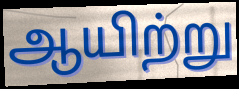
ஆயிற்று